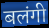
बलंगी